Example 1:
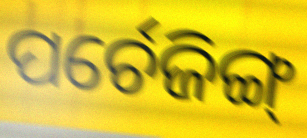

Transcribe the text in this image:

ପର୍ଚେଜିଙ୍ଗ୍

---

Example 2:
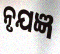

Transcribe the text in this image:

ନୃଯଜ୍ଞ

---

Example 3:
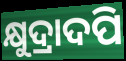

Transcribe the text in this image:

କ୍ଷୁଦ୍ରାଦପି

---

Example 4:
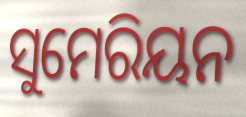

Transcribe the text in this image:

ସୁମେରିୟନ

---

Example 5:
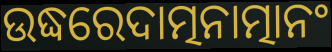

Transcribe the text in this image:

ଉଦ୍ଧରେଦାତ୍ମନାତ୍ମାନଂ